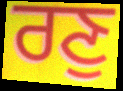
ਰਣੁ